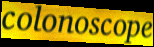
colonoscope